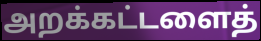
அறக்கட்டளைத்